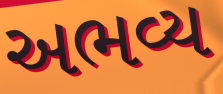
અભવ્ય